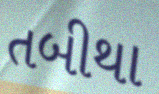
તબીથા